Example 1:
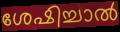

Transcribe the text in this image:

ശേഷിച്ചാൽ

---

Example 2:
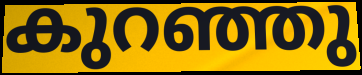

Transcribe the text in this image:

കുറഞ്ഞു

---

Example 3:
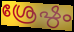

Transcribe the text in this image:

ശ്രേഷ്ഠം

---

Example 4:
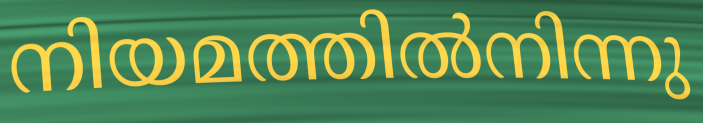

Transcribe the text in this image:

നിയമത്തിൽനിന്നു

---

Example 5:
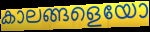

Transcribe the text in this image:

കാലങ്ങളെയോ